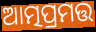
ଆତ୍ମପ୍ରମତ୍ତ